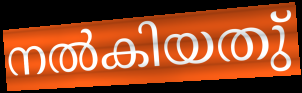
നൽകിയതു്